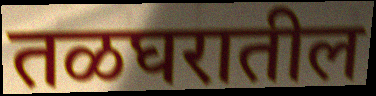
तळघरातील